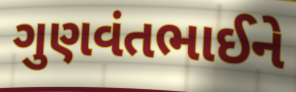
ગુણવંતભાઈને